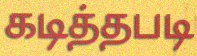
கடித்தபடி